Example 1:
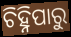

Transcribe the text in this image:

ଚିହ୍ନିପାରୁ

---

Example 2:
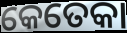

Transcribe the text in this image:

କେତେକା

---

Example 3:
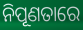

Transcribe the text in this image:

ନିପୂଣତାରେ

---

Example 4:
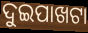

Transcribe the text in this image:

ଦୁଇପାଖଟା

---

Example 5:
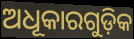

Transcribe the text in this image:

ଅଧୂକାରଗୁଡ଼ିକ